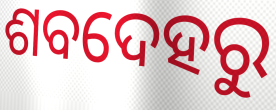
ଶବଦେହରୁ